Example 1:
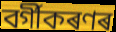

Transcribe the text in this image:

বৰ্গীকৰণৰ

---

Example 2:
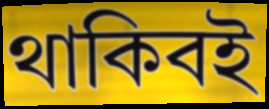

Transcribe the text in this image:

থাকিবই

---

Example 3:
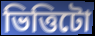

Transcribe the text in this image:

ভিত্তিটো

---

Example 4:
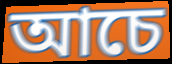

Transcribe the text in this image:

আচে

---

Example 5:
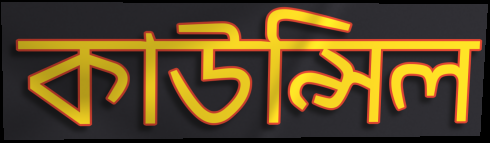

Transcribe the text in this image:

কাউন্সিল